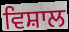
ਵਿਸ਼ਾਲ